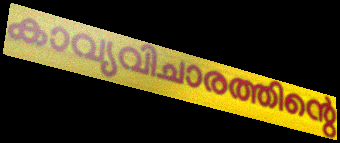
കാവ്യവിചാരത്തിന്റെ